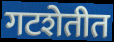
गटशेतीत